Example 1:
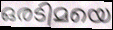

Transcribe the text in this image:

ഒരടിമയെ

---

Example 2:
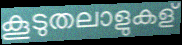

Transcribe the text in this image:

കൂടുതലാളുകള്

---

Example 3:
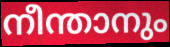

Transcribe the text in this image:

നീന്താനും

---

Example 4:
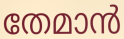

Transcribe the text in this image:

തേമാൻ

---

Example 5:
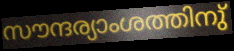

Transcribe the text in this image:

സൗന്ദര്യാംശത്തിനു്